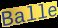
Balle